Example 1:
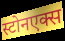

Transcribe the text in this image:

स्टोनएक्स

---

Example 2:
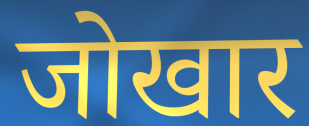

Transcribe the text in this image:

जोखार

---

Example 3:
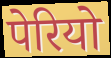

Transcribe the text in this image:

पेरियो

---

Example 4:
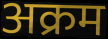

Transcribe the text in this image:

अक्रम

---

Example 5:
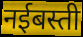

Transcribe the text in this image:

नईबस्ती